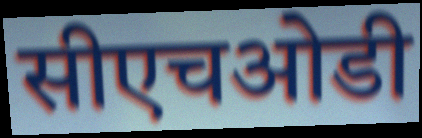
सीएचओडी